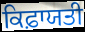
ਕਿਫ਼ਾਯਤੀ